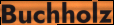
Buchholz